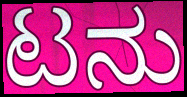
ಟನು